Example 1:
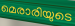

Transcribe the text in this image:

മെരാരിയുടെ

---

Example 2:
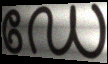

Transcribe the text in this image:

ഡേ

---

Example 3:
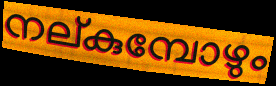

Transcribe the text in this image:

നല്കുമ്പോഴും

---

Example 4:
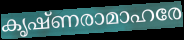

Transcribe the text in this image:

കൃഷ്ണരാമാഹരേ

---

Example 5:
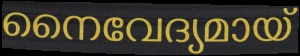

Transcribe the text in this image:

നൈവേദ്യമായ്